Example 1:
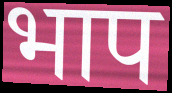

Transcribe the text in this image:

भाप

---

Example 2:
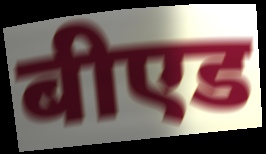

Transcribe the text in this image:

बीएड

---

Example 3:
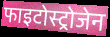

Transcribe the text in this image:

फाइटोस्ट्रोजेन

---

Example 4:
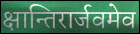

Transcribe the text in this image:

क्षान्तिरार्जवमेव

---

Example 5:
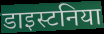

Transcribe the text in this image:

डाइस्टनिया